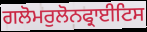
ਗਲੋਮਰੁਲੋਨਫ੍ਰਾਈਟਿਸ